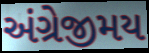
અંગ્રેજીમય